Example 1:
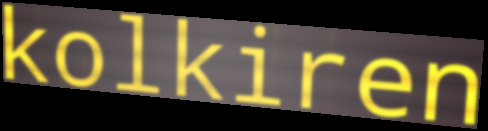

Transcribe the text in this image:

kolkiren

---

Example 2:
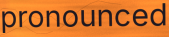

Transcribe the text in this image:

pronounced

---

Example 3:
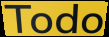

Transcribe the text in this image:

Todo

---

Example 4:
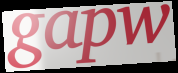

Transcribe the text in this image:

gapw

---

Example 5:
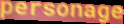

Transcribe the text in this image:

personage